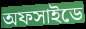
অফসাইডে